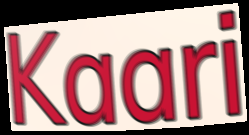
Kaari